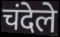
चंदेले